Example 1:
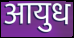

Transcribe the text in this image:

आयुध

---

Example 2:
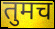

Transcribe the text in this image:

तुमच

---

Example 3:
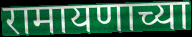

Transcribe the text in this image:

रामायणाच्या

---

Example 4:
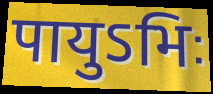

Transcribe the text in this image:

पायुऽभिः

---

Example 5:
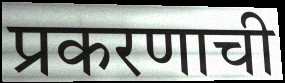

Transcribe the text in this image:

प्रकरणाची